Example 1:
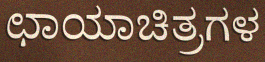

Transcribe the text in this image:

ಛಾಯಾಚಿತ್ರಗಳ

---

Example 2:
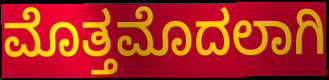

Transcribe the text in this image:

ಮೊತ್ತಮೊದಲಾಗಿ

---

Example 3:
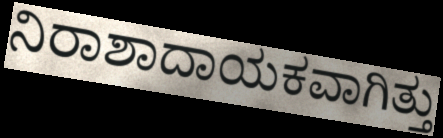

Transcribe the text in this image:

ನಿರಾಶಾದಾಯಕವಾಗಿತ್ತು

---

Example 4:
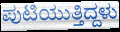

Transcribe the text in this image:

ಪುಟಿಯುತ್ತಿದ್ದಳು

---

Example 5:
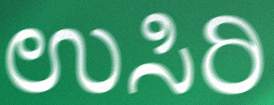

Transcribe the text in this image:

ಉಸಿರಿ